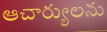
ఆచార్యులను